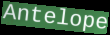
Antelope